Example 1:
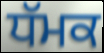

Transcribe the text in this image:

ਧੱਮਕ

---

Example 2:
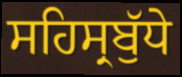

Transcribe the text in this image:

ਸਹਿਸ੍ਰਬੁੱਧੇ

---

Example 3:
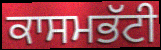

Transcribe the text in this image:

ਕਾਸਮਭੱਟੀ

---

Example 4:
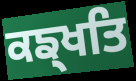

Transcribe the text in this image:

ਕਙ੍ਖਤਿ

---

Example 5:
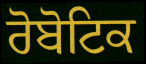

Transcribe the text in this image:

ਰੋਬੋਟਿਕ